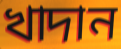
খাদান